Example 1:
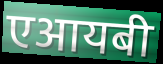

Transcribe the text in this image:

एआयबी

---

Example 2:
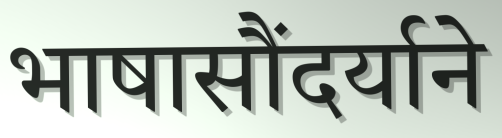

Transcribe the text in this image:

भाषासौंदर्याने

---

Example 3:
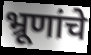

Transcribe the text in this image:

भ्रूणांचे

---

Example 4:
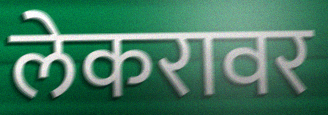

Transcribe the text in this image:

लेकरावर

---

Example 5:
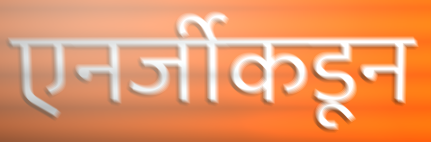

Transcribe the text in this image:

एनर्जीकडून